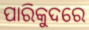
ପାରିକୁଦରେ